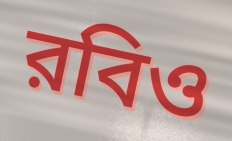
রবিও